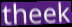
theek